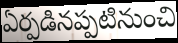
ఏర్పడినప్పటినుంచి